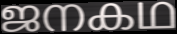
ജനകഥ